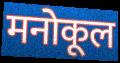
मनोकूल